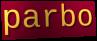
parbo